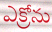
ఎక్రోను